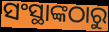
ସଂସ୍ଥାଙ୍କଠାରୁ